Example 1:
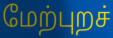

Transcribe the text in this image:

மேற்புறச்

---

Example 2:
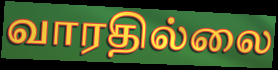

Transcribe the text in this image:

வாரதில்லை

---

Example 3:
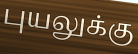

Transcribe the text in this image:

புயலுக்கு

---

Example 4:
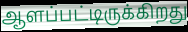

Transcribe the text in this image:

ஆளப்பட்டிருக்கிறது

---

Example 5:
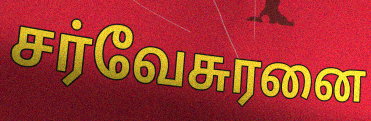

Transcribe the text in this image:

சர்வேசுரனை